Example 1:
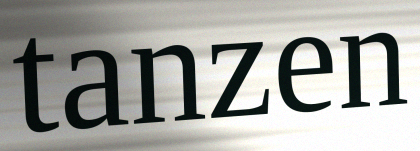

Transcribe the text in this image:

tanzen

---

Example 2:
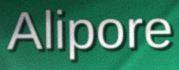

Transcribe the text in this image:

Alipore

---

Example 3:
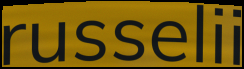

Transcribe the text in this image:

russelii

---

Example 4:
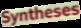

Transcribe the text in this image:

Syntheses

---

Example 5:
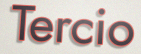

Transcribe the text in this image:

Tercio